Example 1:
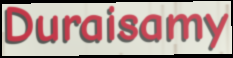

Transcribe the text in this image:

Duraisamy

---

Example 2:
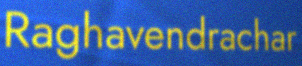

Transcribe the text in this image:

Raghavendrachar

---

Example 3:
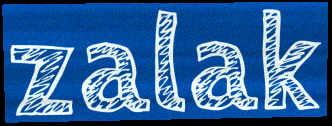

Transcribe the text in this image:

zalak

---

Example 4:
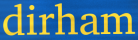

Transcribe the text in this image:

dirham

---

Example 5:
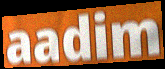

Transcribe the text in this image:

aadim